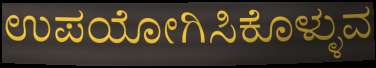
ಉಪಯೋಗಿಸಿಕೊಳ್ಳುವ